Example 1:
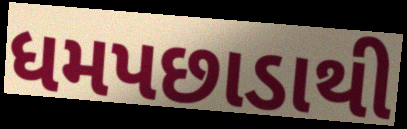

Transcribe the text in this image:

ધમપછાડાથી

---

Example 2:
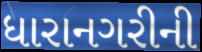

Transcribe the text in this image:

ધારાનગરીની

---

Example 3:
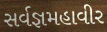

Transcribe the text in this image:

સર્વજ્ઞમહાવીર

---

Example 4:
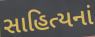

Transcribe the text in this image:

સાહિત્યનાં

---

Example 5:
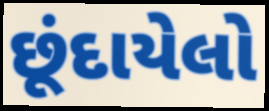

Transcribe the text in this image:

છૂંદાયેલો